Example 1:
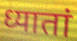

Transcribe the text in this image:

ध्यातां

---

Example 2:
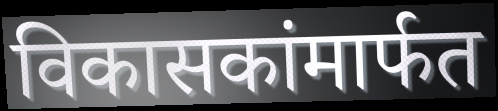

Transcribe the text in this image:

विकासकांमार्फत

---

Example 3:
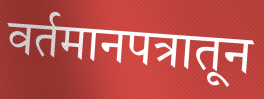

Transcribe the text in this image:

वर्तमानपत्रातून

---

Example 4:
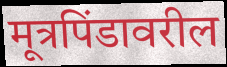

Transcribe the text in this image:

मूत्रपिंडावरील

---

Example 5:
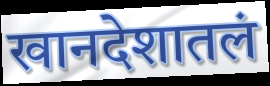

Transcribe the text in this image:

खानदेशातलं